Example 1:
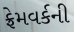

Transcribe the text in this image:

ફ્રેમવર્કની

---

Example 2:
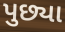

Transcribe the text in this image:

પુછ્યા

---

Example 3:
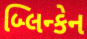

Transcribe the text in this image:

બ્લિન્કેન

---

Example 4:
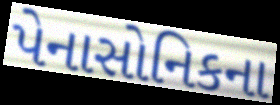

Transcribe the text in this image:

પેનાસોનિકના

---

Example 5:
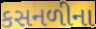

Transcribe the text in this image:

કસનળીના